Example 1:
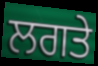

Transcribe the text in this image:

ਲਗਤੇ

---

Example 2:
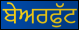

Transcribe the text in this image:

ਬੇਅਰਫੁੱਟ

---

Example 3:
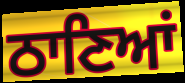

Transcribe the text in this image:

ਠਾਣਿਆਂ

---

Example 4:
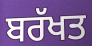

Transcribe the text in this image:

ਬਰੱਖਤ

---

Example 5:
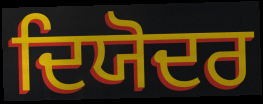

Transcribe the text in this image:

ਦਿਯੋਦਰ